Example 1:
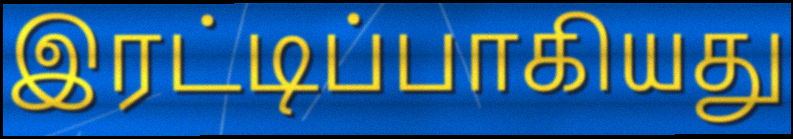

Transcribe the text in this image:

இரட்டிப்பாகியது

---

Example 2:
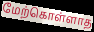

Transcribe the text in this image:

மேற்கொள்ளாத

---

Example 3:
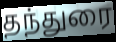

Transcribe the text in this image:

தந்துரை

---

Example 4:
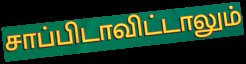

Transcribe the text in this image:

சாப்பிடாவிட்டாலும்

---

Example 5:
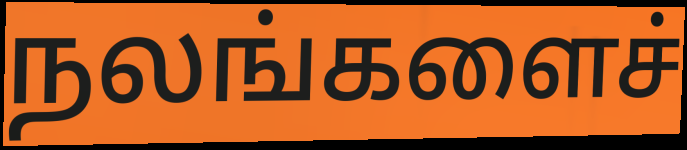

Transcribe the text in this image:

நலங்களைச்